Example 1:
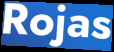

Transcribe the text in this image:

Rojas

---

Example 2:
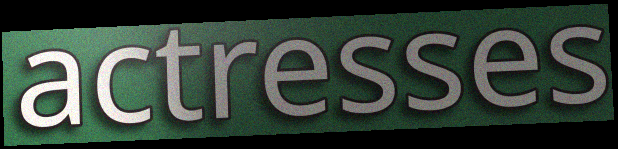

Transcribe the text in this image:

actresses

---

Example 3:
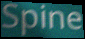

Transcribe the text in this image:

Spine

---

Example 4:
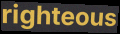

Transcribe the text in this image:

righteous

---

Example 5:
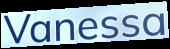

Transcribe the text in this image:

Vanessa